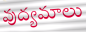
వుద్యమాలు